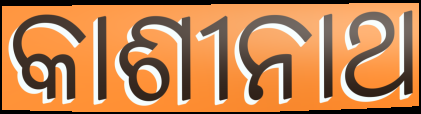
କାଶୀନାଥ